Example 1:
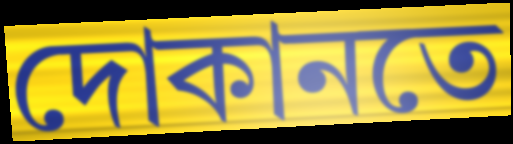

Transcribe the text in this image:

দোকানতে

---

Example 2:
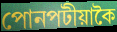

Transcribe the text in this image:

পোনপটীয়াকৈ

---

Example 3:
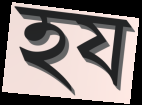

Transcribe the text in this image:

হয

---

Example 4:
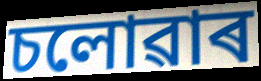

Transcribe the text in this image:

চলোৱাৰ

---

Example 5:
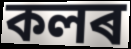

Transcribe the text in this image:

কলৰ